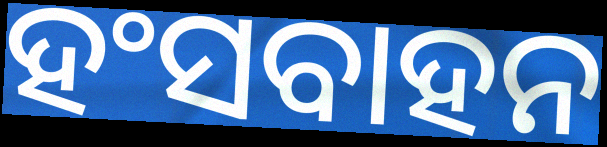
ହଂସବାହନ